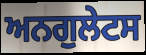
ਅਨਗੁਲੇਟਸ